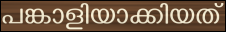
പങ്കാളിയാക്കിയത്